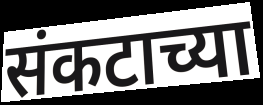
संकटाच्या